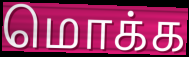
மொக்க